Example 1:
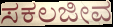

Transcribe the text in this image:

ಸಕಲಜೀವ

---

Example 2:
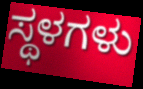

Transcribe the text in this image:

ಸ್ಥಳಗಳು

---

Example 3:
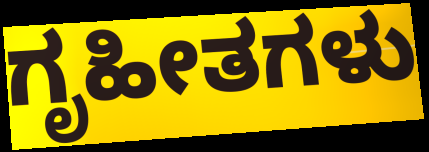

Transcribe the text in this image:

ಗೃಹೀತಗಳು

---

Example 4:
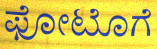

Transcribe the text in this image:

ಫೋಟೊಗೆ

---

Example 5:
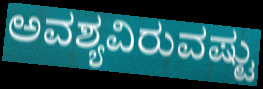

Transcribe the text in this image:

ಅವಶ್ಯವಿರುವಷ್ಟು